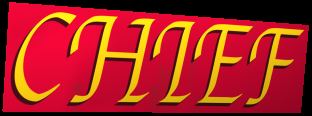
CHIEF